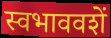
स्वभाववशें